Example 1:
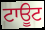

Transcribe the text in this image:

ਟਾਊਟ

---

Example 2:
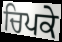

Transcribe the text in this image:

ਚਿਪਕੇ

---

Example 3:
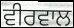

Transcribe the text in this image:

ਵੀਰਵਾਲ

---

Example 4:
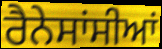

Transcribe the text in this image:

ਰੈਨੇਸਾਂਸੀਆਂ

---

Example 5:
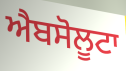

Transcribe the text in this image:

ਐਬਸੋਲੂਟਾ